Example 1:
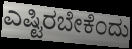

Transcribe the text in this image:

ಎಷ್ಟಿರಬೇಕೆಂದು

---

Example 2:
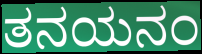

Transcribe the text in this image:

ತನಯನಂ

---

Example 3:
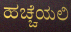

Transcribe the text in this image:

ಹಚ್ಚೆಯಲಿ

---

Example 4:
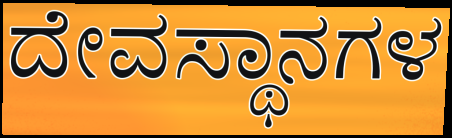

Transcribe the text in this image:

ದೇವಸ್ಥಾನಗಳ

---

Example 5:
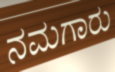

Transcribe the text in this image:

ನಮಗಾರು